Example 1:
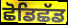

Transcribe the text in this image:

ਛੋਡਿਛੱਡ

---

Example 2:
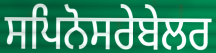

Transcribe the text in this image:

ਸਪਿਨੋਸਰੇਬੇਲਰ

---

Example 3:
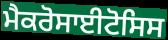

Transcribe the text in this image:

ਮੈਕਰੋਸਾਈਟੋਸਿਸ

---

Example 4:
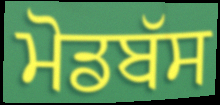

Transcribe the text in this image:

ਮੋਡਬੱਸ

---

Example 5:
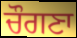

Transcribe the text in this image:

ਚੌਗਣਾ